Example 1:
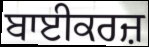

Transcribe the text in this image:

ਬਾਈਕਰਜ਼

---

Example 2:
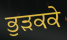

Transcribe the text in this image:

ਭੁੜਕਕੇ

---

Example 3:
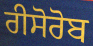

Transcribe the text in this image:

ਰੀਸੋਰੋਬ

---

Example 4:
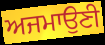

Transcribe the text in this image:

ਅਜਮਾਉਣੀ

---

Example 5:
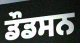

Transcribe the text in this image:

ਡੌਡਸਨ